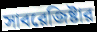
সাবরেজিষ্টার